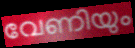
വേണിയും